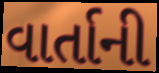
વાર્તાની